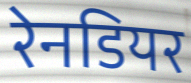
रेनडियर